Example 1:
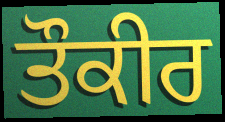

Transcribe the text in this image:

ਤੌਕੀਰ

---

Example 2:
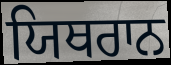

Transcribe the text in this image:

ਯਿਥਰਾਨ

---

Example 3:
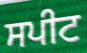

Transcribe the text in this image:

ਸਪੀਟ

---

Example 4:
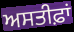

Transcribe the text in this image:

ਅਸਤੀਫ਼ਾਂ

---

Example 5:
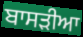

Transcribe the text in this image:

ਬਾਸੜੀਆ